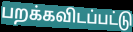
பறக்கவிடப்பட்டு